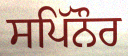
ਸਪਿੱਨੌਰ